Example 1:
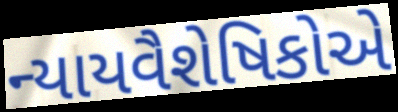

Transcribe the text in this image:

ન્યાયવૈશેષિકોએ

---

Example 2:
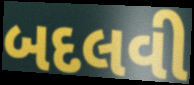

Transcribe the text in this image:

બદલવી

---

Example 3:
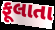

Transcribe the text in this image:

ફૂલાતા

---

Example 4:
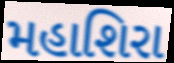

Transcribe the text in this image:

મહાશિરા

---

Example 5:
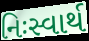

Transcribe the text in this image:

નિઃસ્વાર્થ